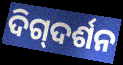
ଦିଗ୍‌ଦର୍ଶନ